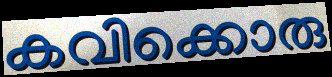
കവിക്കൊരു